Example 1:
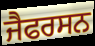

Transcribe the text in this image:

ਜੈਫਰਸਨ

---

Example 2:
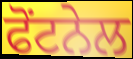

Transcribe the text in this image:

ਫੋਂਟਨੇਲ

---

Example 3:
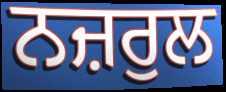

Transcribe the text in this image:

ਨਜ਼ਰੁਲ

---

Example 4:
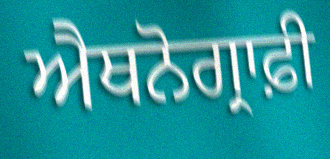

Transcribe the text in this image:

ਐਥਨੋਗ੍ਰਾਫ਼ੀ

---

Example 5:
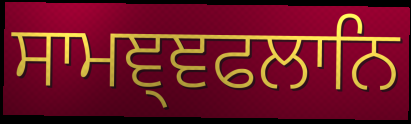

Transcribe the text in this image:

ਸਾਮਞ੍ਞਫਲਾਨਿ